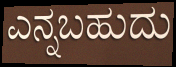
ಎನ್ನಬಹುದು